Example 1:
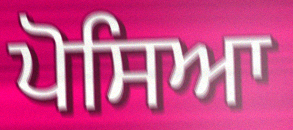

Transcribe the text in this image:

ਪੋਸਿਆ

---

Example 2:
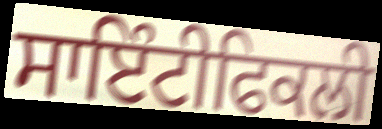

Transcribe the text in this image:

ਸਾਇੰਟੀਫਿਕਲੀ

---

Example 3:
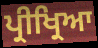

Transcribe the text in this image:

ਪ੍ਰੀਖ੍ਰਿਆ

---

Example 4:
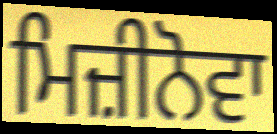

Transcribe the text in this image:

ਮਿਜ਼ੀਨੋਵਾ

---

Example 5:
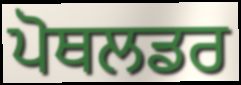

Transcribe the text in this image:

ਪੋਥਲਡਰ